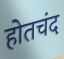
होतचंद